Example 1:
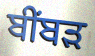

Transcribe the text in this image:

ਬੀਂਬੜ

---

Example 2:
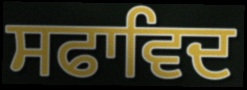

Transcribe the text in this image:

ਸਫਾਵਿਦ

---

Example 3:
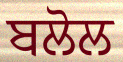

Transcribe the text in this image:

ਬਲੋਲ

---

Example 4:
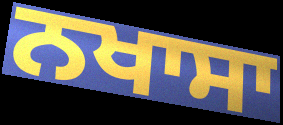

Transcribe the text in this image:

ਨਖਾਸਾ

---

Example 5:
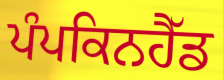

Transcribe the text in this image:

ਪੰਪਕਿਨਹੈੱਡ